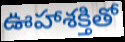
ఊహాశక్తితో